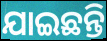
ଯାଇଛନ୍ତି